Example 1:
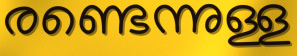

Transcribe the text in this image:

രണ്ടെന്നുള്ള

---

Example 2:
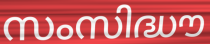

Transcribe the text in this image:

സംസിദ്ധൗ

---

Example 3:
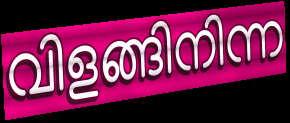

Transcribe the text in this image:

വിളങ്ങിനിന്ന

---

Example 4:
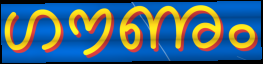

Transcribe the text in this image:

ഗൗണും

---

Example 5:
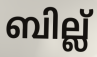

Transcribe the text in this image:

ബില്ല്